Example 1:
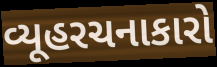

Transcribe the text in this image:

વ્યૂહરચનાકારો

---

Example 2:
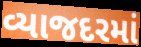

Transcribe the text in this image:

વ્યાજદરમાં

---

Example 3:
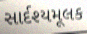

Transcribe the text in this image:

સાર્દશ્યમૂલક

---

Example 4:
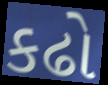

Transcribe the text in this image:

કઢો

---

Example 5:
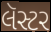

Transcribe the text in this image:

લૅસ્ટર